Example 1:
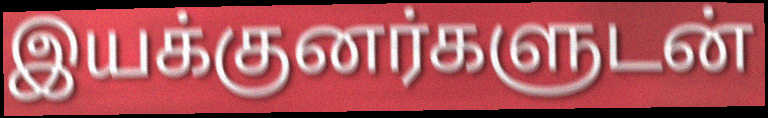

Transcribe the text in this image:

இயக்குனர்களுடன்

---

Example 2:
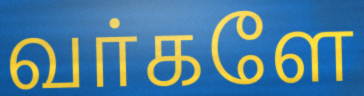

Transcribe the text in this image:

வர்களே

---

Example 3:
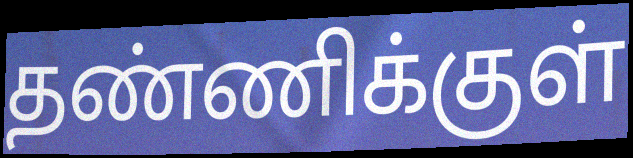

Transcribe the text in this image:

தண்ணிக்குள்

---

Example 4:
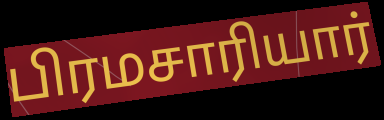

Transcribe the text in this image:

பிரமசாரியார்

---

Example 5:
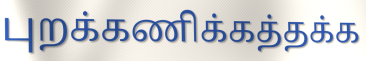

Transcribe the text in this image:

புறக்கணிக்கத்தக்க